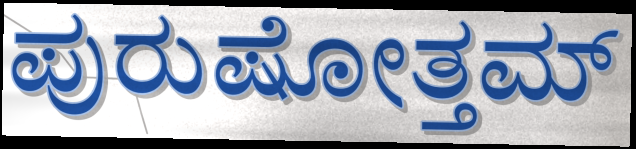
ಪುರುಷೋತ್ತಮ್